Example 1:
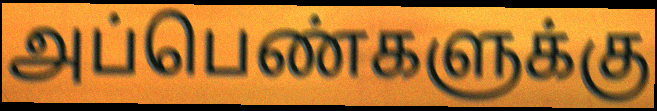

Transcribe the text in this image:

அப்பெண்களுக்கு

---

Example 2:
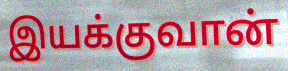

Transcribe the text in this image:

இயக்குவான்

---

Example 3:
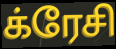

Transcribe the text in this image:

க்ரேசி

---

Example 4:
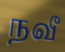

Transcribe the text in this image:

நவீ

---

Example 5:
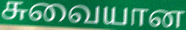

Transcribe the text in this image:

சுவையான